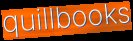
quillbooks